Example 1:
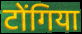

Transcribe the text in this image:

टोंगिया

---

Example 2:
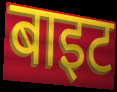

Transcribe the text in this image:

बाइट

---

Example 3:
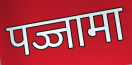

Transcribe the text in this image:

पज्जामा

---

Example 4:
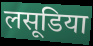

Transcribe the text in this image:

लसूडिया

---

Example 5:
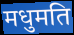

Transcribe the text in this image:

मधुमति